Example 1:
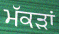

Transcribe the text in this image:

ਮੱਕੜਾਂ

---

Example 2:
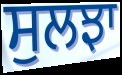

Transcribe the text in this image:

ਸੁਲਝਾ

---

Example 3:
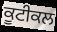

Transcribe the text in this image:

ਕੂਟੀਕਲ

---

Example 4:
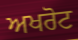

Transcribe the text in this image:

ਅਖਰੋਟ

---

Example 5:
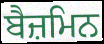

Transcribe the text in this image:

ਬੈਜ਼ਮਿਨ